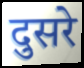
दुसरे